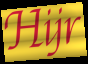
Hijr